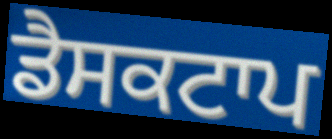
ਡੈਸਕਟਾਪ